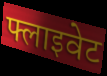
फ्लाइवेट